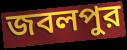
জবলপুর